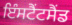
ਇੰਸਟੈਂਟਸੈਂਡ